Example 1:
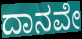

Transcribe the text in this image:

ದಾನವೇ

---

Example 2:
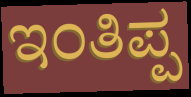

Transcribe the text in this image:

ಇಂತಿಪ್ಪ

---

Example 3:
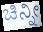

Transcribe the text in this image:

ಚಿನ್ನೀ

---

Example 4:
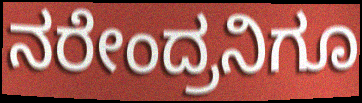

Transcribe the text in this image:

ನರೇಂದ್ರನಿಗೂ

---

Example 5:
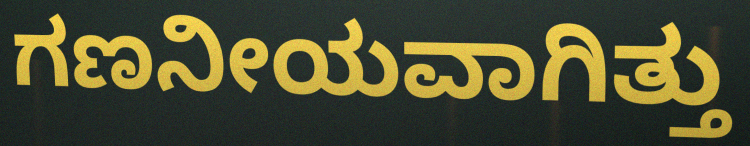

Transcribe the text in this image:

ಗಣನೀಯವಾಗಿತ್ತು